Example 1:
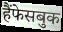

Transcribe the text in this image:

हैंफेसबुक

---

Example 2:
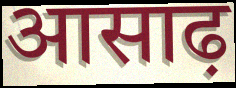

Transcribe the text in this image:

आसाढ़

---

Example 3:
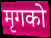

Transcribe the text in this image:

मृगको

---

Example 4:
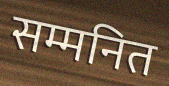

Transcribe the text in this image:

सम्मनित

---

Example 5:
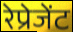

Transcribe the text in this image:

रेप्रेजेंट